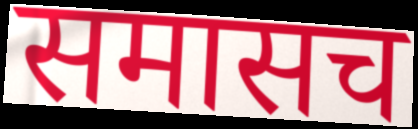
समासच